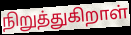
நிறுத்துகிறாள்